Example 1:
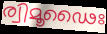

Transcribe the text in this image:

ര്വിമൂഢൈഃ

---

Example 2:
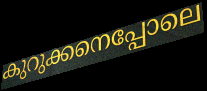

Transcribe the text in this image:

കുറുക്കനെപ്പോലെ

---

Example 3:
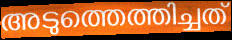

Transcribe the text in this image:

അടുത്തെത്തിച്ചത്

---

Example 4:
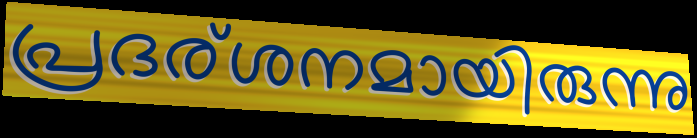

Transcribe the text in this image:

പ്രദര്ശനമായിരുന്നു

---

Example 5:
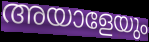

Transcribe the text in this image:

അയാളേയും